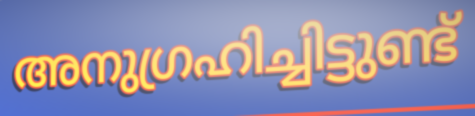
അനുഗ്രഹിച്ചിട്ടുണ്ട്